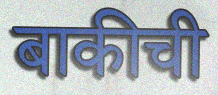
बाकीची